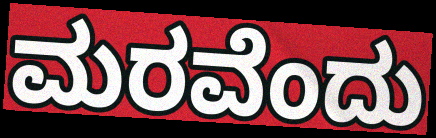
ಮರವೆಂದು